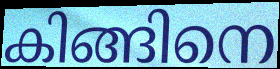
കിങ്ങിനെ